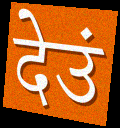
देउं